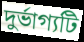
দুর্ভাগ্যটি